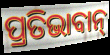
ପ୍ରତିଭାବାନ୍